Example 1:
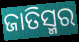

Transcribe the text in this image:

ଜାତିସ୍ମର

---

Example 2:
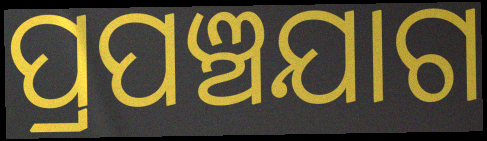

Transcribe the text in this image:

ପ୍ରପଞ୍ଚଯାଗ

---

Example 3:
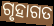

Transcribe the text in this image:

ଗୃହାଗତ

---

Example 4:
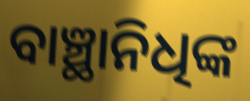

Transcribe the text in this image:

ବାଞ୍ଛାନିଧିଙ୍କ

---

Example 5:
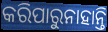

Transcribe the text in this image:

କରିପାରୁନାହାନ୍ତି